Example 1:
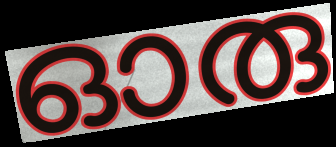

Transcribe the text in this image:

ഓരു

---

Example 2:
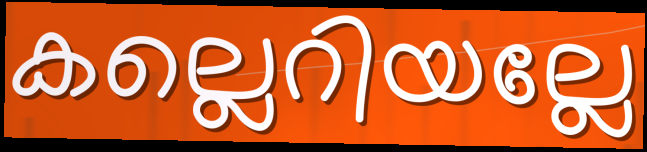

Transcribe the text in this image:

കല്ലെറിയല്ലേ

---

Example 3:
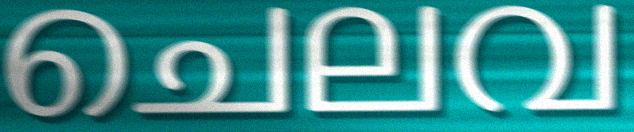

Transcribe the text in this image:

ചെലവ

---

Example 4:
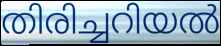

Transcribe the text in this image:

തിരിച്ചറിയൽ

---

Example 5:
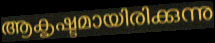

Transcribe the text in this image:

ആകൃഷ്ടമായിരിക്കുന്നു